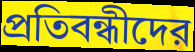
প্রতিবন্ধীদের